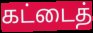
கட்டைத்